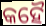
କହୈ